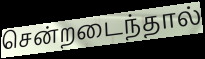
சென்றடைந்தால்